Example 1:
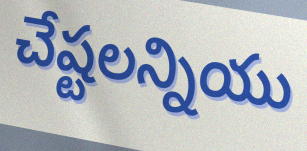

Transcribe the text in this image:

చేష్టలన్నియు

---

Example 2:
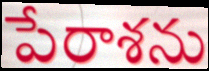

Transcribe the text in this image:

పేరాశను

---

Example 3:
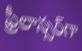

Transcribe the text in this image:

ఫ్రీలాన్సర్‌గా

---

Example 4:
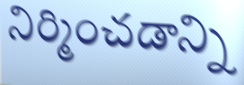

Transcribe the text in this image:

నిర్మించడాన్ని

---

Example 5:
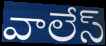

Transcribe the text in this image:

వాలేస్